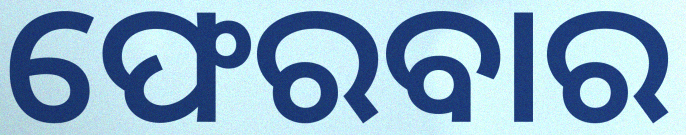
ଫେରବାର